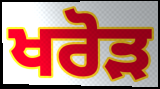
ਖਰੋੜ